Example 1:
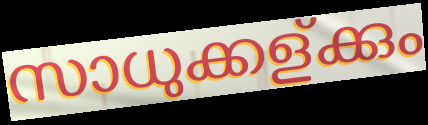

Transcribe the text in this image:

സാധുക്കള്ക്കും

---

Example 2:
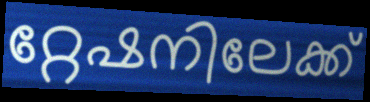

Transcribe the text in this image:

റ്റേഷനിലേക്ക്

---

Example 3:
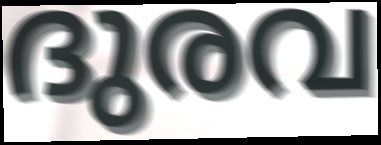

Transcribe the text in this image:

ദുരവ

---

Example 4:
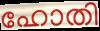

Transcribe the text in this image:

ഹോതി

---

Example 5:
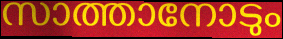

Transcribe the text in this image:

സാത്താനോടും